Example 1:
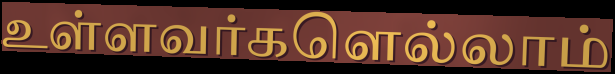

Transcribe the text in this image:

உள்ளவர்களெல்லாம்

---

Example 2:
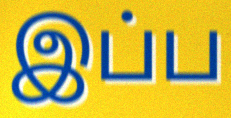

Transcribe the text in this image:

இப்ப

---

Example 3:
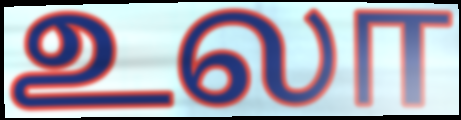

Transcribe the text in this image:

உலா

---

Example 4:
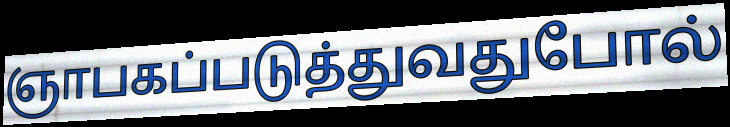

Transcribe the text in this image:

ஞாபகப்படுத்துவதுபோல்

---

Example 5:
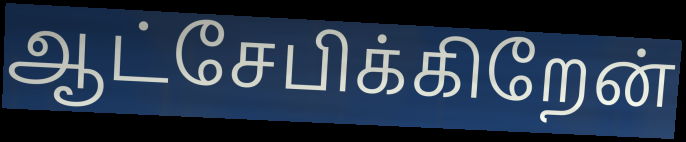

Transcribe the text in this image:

ஆட்சேபிக்கிறேன்